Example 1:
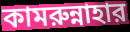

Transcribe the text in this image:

কামরুন্নাহার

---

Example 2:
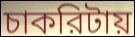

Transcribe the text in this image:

চাকরিটায়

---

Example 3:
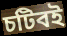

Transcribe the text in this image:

চটিবই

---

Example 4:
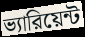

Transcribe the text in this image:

ভ্যারিয়েন্ট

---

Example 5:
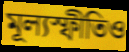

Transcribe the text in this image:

মূল্যস্ফীতিও